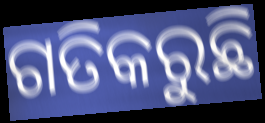
ଗତିକରୁଛି